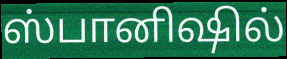
ஸ்பானிஷில்